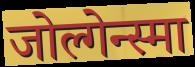
जोल्गेन्स्मा